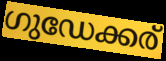
ഗുഡേക്കര്